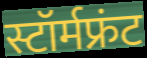
स्टॉर्मफ्रंट